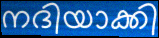
നദിയാക്കി